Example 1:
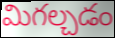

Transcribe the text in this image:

మిగల్చడం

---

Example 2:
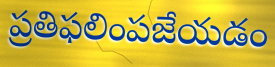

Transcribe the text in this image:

ప్రతిఫలింపజేయడం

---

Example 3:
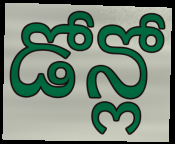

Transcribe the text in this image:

డోన్లో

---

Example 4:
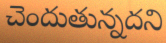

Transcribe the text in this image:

చెందుతున్నదని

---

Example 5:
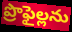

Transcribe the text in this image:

ప్రొఫైల్లను